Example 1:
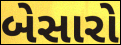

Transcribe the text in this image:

બેસારો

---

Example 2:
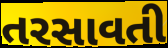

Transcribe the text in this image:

તરસાવતી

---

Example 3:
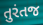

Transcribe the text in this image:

તુરંતજ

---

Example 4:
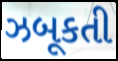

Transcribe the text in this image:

ઝબૂકતી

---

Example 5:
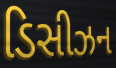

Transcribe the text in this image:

ડિસીઝન